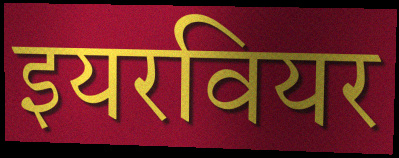
इयरवियर